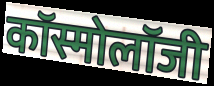
कॉस्मोलॉजी